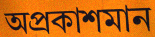
অপ্রকাশমান